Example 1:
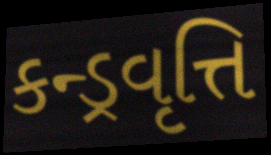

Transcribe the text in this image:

કન્ડ્રવૃત્તિ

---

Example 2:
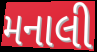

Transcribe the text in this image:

મનાલી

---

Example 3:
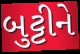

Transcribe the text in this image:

બુટ્ટીને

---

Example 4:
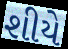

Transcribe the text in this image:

શીયે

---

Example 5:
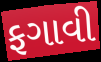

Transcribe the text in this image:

ફગાવી